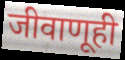
जीवाणूही